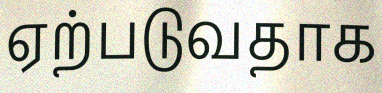
ஏற்படுவதாக